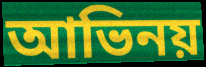
আভিনয়